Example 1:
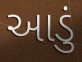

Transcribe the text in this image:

આડું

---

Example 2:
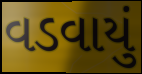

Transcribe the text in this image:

વડવાયું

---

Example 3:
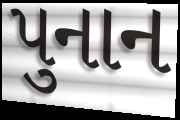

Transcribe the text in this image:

પુનાન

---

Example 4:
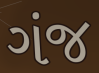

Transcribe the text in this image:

ગંજ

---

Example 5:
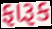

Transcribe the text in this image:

ફારૂક